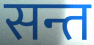
सन्‍त